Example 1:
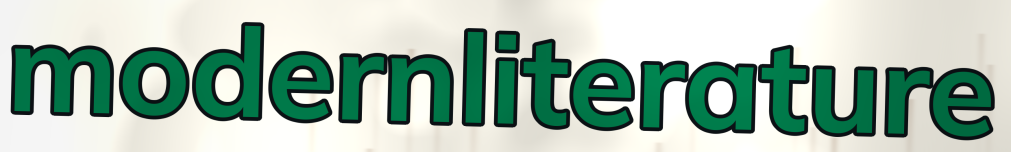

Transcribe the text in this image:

modernliterature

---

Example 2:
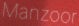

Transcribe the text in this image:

Manzoor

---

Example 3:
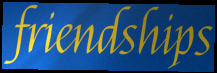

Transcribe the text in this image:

friendships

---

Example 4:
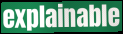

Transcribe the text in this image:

explainable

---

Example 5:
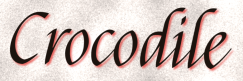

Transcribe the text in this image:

Crocodile